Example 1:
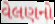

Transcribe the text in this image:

વેલણનો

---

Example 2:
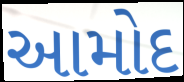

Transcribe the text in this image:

આમોદ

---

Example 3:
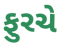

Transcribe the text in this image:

ફુરચે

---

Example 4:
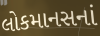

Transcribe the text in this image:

લોકમાનસનાં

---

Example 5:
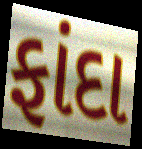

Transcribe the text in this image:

ફાંદા